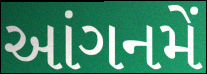
આંગનમેં